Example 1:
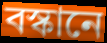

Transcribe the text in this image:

বস্কানে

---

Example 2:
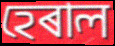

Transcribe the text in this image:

হেৰাল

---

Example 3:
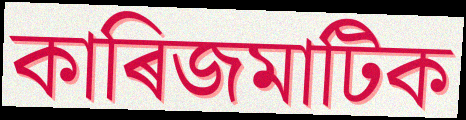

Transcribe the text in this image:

কাৰিজমাটিক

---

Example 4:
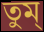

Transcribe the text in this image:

তুম্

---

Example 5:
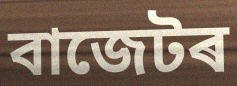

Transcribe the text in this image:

বাজেটৰ